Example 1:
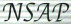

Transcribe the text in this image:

NSAP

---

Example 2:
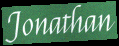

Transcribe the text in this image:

Jonathan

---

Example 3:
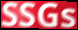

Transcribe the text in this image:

SSGs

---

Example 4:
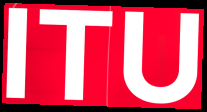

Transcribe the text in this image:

ITU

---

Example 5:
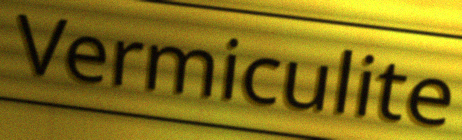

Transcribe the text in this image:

Vermiculite